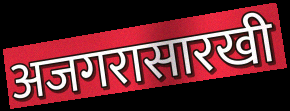
अजगरासारखी